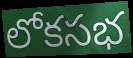
లోకసభ